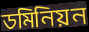
ডমিনিয়ন